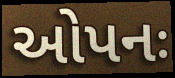
ઓપનઃ